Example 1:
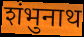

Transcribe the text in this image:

शंभुनाथ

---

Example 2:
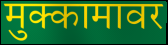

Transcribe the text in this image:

मुक्कामावर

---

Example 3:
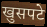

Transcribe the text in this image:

खुसपटे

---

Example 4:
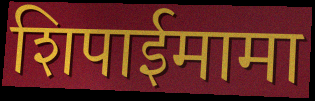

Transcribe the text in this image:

शिपाईमामा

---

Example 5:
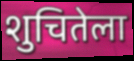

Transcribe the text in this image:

शुचितेला